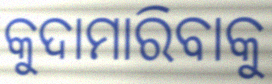
କୁଦାମାରିବାକୁ